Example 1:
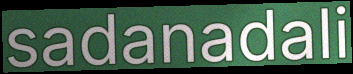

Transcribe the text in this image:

sadanadali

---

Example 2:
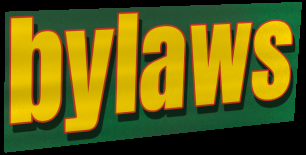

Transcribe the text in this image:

bylaws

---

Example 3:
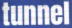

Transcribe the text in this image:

tunnel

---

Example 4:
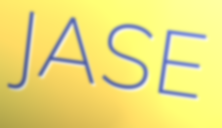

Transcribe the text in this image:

JASE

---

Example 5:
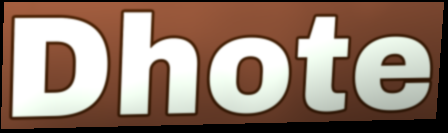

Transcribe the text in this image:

Dhote